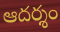
ఆదర్శం